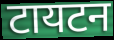
टायटन